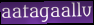
aatagaallu